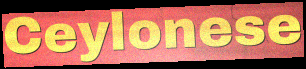
Ceylonese